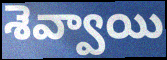
శెవ్వాయి